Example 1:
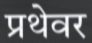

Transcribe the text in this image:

प्रथेवर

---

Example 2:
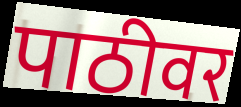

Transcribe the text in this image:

पाठीवर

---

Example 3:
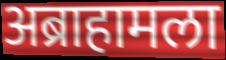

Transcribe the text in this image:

अब्राहामला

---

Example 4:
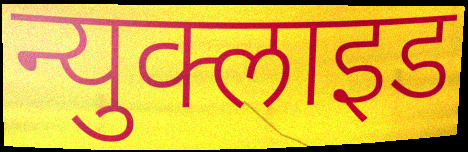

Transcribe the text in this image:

न्युक्लाइड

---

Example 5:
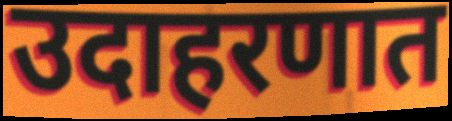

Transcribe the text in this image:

उदाहरणात